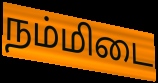
நம்மிடை